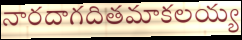
నారదాగదితమాకలయ్య